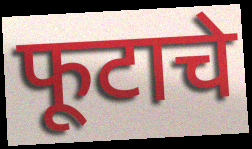
फूटाचे